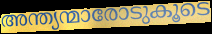
അന്ത്യന്മാരോടുകൂടെ